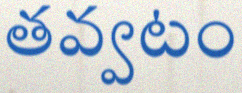
తవ్వటం